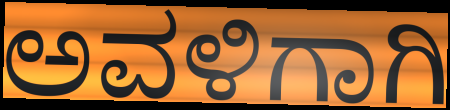
ಅವಳಿಗಾಗಿ